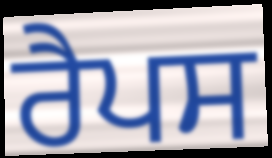
ਰੈਪਸ